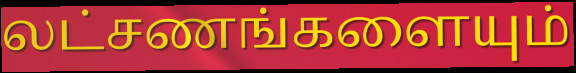
லட்சணங்களையும்